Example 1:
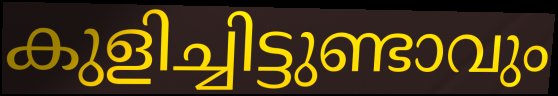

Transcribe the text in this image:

കുളിച്ചിട്ടുണ്ടാവും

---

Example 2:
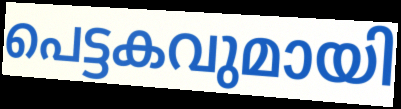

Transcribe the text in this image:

പെട്ടകവുമായി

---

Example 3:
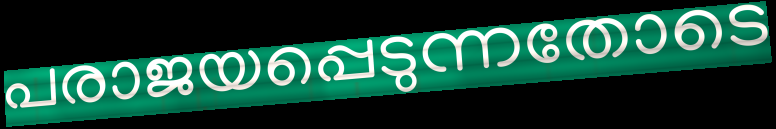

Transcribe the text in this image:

പരാജയപ്പെടുന്നതോടെ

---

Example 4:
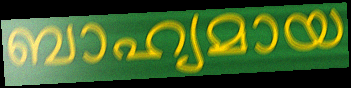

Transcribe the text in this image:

ബാഹ്യമായ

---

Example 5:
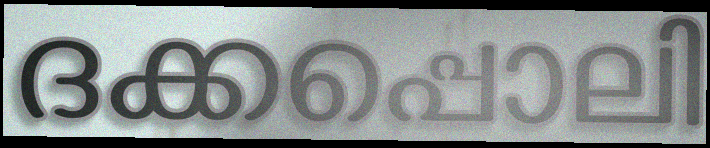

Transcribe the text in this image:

ദക്കപ്പൊലി